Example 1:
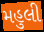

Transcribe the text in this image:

મહુલી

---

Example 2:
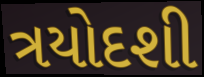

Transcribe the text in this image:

ત્રયોદશી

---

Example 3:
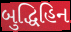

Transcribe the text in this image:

બુદ્ધિહિન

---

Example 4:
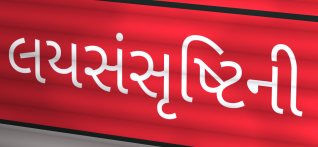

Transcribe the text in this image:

લયસંસૃષ્ટિની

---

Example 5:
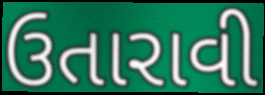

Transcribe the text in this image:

ઉતારાવી